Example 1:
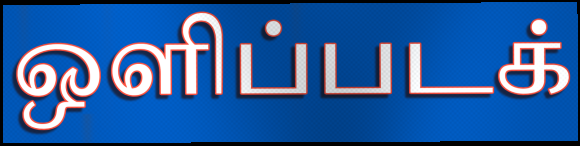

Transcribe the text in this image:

ஒளிப்படக்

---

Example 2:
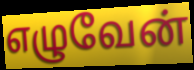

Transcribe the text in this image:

எழுவேன்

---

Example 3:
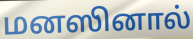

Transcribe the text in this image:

மனஸினால்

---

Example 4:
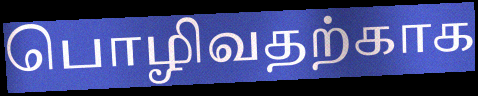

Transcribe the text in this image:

பொழிவதற்காக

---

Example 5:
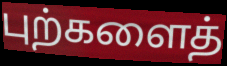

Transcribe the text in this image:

புற்களைத்